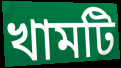
খামটি